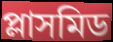
প্লাসমিড